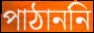
পাঠাননি